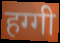
हग्गी